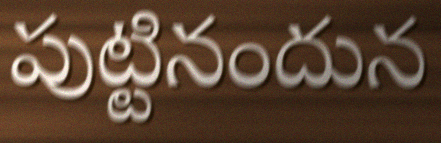
పుట్టినందున